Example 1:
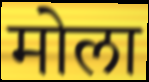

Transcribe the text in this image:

मोला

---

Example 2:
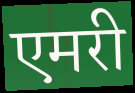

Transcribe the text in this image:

एमरी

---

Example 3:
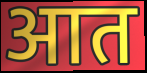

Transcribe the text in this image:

आत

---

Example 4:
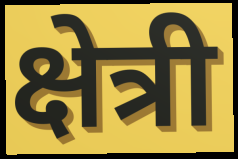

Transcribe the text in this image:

क्षेत्री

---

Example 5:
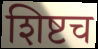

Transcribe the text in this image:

शिष्टच